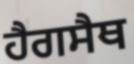
ਹੈਗਸੈਥ